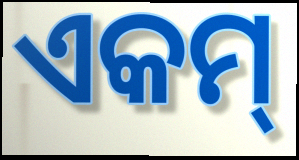
ଏକମ୍